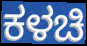
ಕಳಚಿ